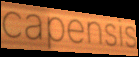
capensis